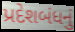
પ્રદેશબંધનું